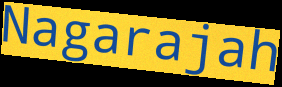
Nagarajah